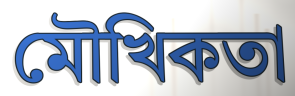
মৌখিকতা